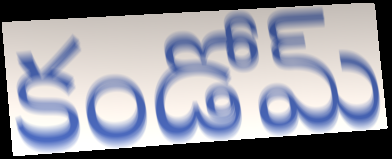
కండోమ్